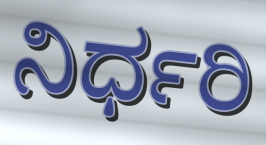
ನಿರ್ಧರಿ